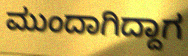
ಮುಂದಾಗಿದ್ದಾಗ